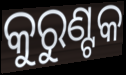
କୁରୁଣ୍ଟକ